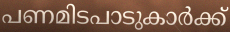
പണമിടപാടുകാർക്ക്